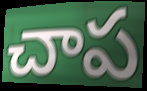
చాప